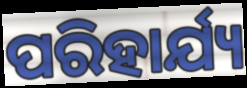
ପରିହାର୍ଯ୍ୟ